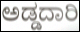
ಅಡ್ಡದಾರಿ